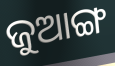
ଜୁଆଙ୍ଗ